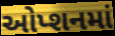
ઓપ્શનમાં